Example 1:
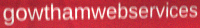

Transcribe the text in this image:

gowthamwebservices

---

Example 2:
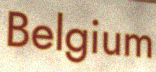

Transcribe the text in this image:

Belgium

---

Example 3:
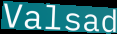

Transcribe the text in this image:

Valsad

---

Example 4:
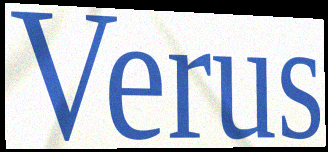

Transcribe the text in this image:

Verus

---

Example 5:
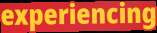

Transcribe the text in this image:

experiencing